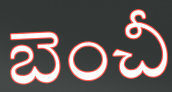
బెంచీ